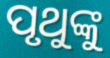
ପୃଥୁଙ୍କୁ